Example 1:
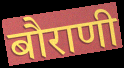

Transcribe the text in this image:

बौराणी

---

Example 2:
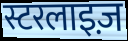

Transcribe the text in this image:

स्टरलाइज़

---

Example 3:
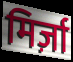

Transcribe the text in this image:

मिर्ज़ा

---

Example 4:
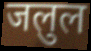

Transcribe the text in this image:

जलुल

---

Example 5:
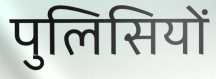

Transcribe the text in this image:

पुलिसियों